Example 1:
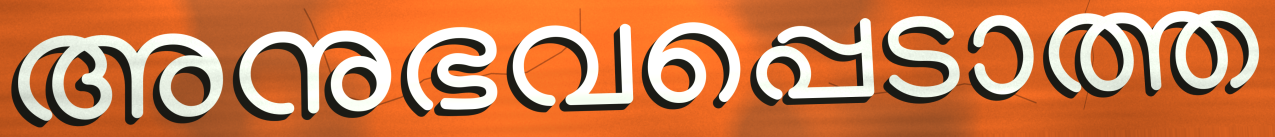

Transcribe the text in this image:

അനുഭവപ്പെടാത്ത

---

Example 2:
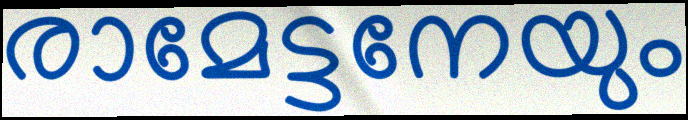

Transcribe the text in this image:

രാമേട്ടനേയും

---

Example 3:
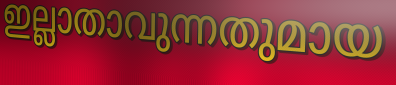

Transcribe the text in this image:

ഇല്ലാതാവുന്നതുമായ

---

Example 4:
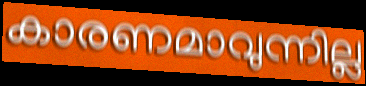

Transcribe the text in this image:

കാരണമാവുന്നില്ല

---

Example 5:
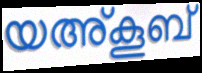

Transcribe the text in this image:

യഅ്കൂബ്